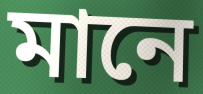
মানে